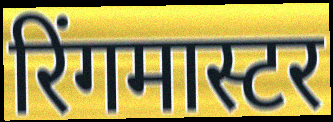
रिंगमास्टर